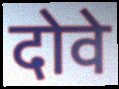
दोवे